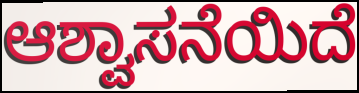
ಆಶ್ವಾಸನೆಯಿದೆ